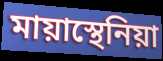
মায়াস্থেনিয়া